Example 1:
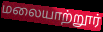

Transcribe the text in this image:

மலையாற்றூர்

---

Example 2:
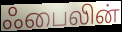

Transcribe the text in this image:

ஃபைலின்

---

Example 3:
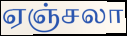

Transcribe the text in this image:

ஏஞ்சலா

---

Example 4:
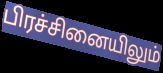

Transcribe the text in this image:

பிரச்சினையிலும்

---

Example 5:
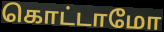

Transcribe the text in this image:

கொட்டாமோ